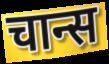
चान्स